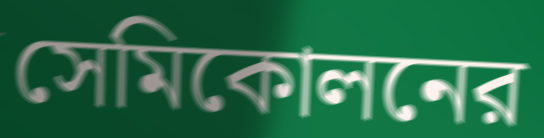
সেমিকোলনের